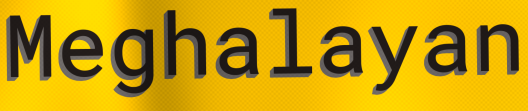
Meghalayan